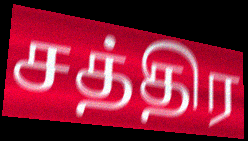
சத்திர